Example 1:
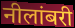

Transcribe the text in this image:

नीलांबरी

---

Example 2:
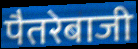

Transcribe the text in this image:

पैतरेबाजी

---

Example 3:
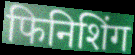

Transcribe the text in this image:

फिनिशिंग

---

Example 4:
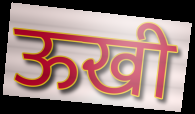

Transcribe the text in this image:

ऊखी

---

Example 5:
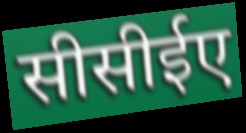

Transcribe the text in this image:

सीसीईए